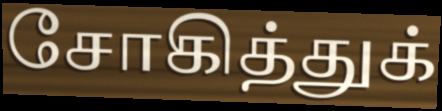
சோகித்துக்